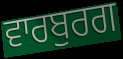
ਵਾਰਬੁਰਗ